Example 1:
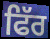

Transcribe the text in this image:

ਫਿੱਰ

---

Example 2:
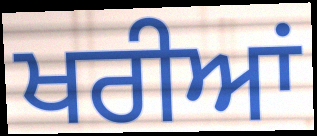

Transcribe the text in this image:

ਖਰੀਆਂ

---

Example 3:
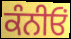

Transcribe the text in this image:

ਕੰਨੀਓਂ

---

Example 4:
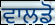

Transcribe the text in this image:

ਵਾਲਡੋ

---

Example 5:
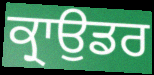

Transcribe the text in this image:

ਕ੍ਰਾਉਡਰ